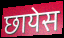
छायेस